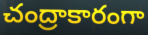
చంద్రాకారంగా